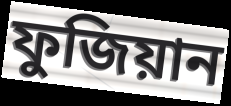
ফুজিয়ান